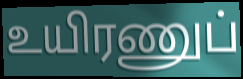
உயிரணுப்